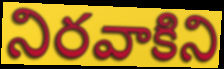
నిరవాకిని